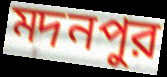
মদনপুর